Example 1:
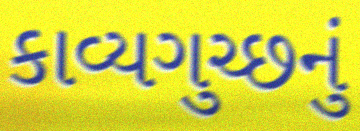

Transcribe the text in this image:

કાવ્યગુચ્છનું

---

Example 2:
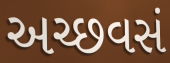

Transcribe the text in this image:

અચ્છવસં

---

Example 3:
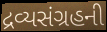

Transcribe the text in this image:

દ્રવ્યસંગ્રહની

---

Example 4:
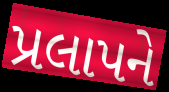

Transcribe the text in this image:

પ્રલાપને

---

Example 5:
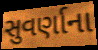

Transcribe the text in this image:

સુવર્ણાના